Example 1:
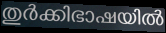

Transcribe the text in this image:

തുർക്കിഭാഷയിൽ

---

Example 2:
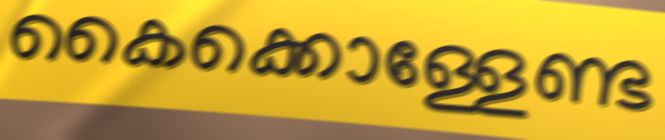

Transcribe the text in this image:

കൈക്കൊള്ളേണ്ട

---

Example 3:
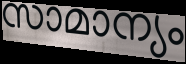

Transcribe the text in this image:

സാമാന്യം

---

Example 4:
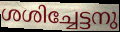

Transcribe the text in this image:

ശശിച്ചേട്ടനു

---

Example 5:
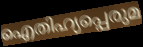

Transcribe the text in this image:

ഐതിഹ്യപ്പെരുമ